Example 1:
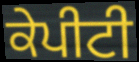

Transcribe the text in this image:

ਕੇਪੀਟੀ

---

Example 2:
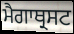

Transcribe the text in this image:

ਮੈਗਾਥ੍ਰਸਟ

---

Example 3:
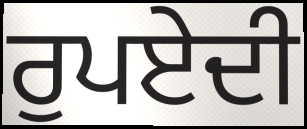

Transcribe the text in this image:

ਰੁਪਏਦੀ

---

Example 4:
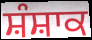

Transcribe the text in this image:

ਸ਼ੰਸ਼ਾਕ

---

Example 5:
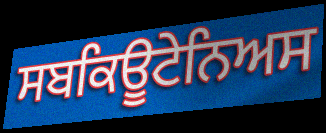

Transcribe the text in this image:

ਸਬਕਿਊਟੇਨਿਅਸ